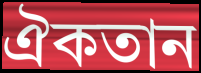
ঐকতান